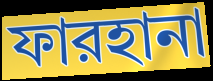
ফারহানা